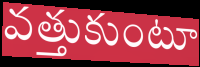
వత్తుకుంటూ